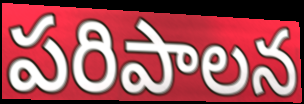
పరిపాలన